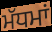
ਮੱਧਮਾਂ